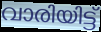
വാരിയിട്ട്